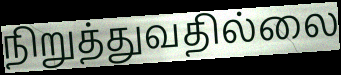
நிறுத்துவதில்லை